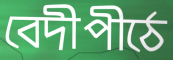
বেদীপীঠে